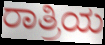
ರಾತ್ರಿಯ